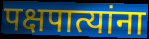
पक्षपात्यांना